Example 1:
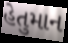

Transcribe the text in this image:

હેતુમાન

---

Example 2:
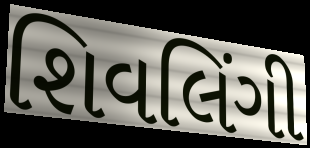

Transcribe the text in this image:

શિવલિંગી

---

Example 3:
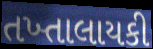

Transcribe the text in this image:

તખ્તાલાયકી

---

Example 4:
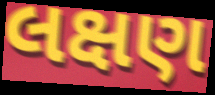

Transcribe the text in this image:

લક્ષણ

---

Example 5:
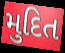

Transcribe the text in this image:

મુદિત